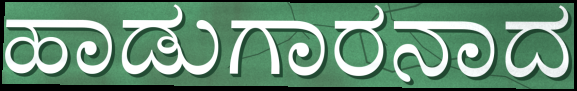
ಹಾಡುಗಾರನಾದ